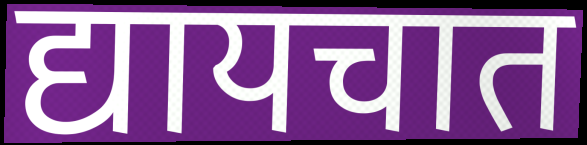
द्यायचात